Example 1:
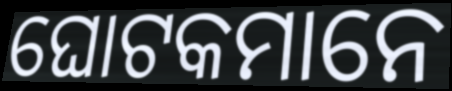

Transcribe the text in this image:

ଘୋଟକମାନେ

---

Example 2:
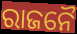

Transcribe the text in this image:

ରାଜନୈ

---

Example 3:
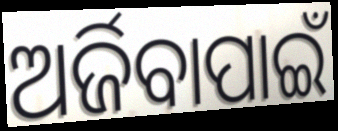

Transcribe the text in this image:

ଅର୍ଜିବାପାଇଁ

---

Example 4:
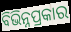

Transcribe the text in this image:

ବିଭିନ୍ନପ୍ରକାର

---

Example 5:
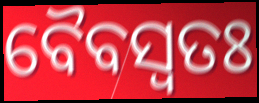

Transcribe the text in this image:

ବୈବସ୍ଵତଃ